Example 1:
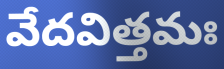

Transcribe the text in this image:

వేదవిత్తమః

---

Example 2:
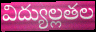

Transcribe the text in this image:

విద్యుల్లతల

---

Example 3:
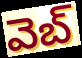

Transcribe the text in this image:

వెబ్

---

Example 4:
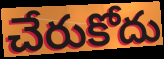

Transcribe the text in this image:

చేరుకోదు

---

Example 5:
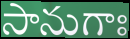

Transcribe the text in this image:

సానుగాః